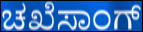
ಚಖೆಸಾಂಗ್